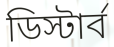
ডিস্টার্ব